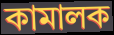
কামালক